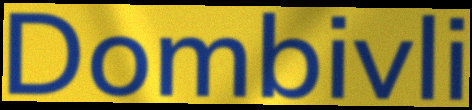
Dombivli